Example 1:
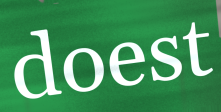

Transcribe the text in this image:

doest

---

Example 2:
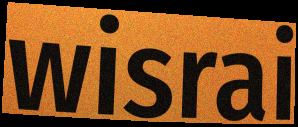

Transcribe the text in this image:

wisrai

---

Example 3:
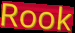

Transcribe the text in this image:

Rook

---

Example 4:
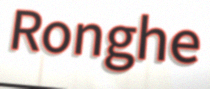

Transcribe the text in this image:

Ronghe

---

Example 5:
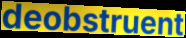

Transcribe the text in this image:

deobstruent